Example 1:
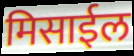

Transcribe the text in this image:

मिसाईल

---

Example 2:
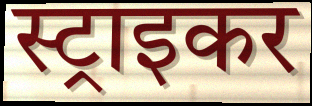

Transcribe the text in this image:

स्ट्राइकर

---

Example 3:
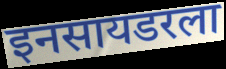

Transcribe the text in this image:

इनसायडरला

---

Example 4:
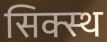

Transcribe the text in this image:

सिक्स्थ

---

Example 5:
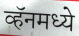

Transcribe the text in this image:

व्हॅनमध्ये